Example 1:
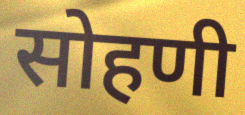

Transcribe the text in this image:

सोहणी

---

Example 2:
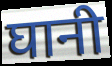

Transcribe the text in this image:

घानी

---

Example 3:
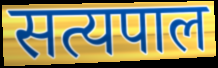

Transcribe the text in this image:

सत्यपाल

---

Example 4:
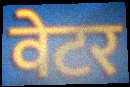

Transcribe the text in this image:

वेटर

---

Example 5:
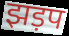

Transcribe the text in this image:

झड़प